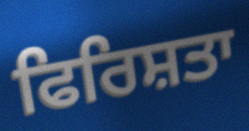
ਫਿਰਿਸ਼ਤਾ